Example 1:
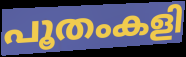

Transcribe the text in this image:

പൂതംകളി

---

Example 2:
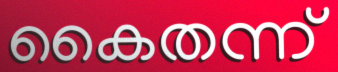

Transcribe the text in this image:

കൈതന്ന്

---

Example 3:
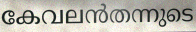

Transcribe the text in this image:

കേവലൻതന്നുടെ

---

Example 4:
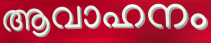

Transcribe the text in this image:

ആവാഹനം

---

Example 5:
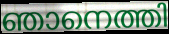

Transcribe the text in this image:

ഞാനെത്തി